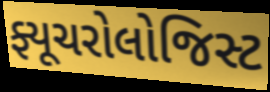
ફ્યૂચરોલોજિસ્ટ